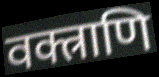
वक्त्राणि